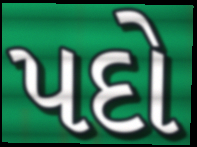
પદો